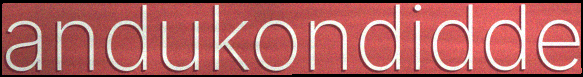
andukondidde